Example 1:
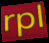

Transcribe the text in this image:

rpl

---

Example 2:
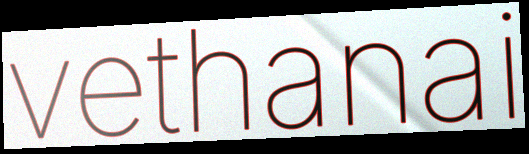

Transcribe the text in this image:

vethanai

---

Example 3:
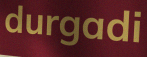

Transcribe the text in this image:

durgadi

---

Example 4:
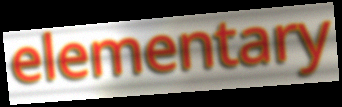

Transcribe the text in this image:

elementary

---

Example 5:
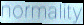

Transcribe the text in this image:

normality